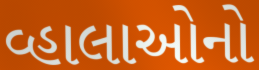
વ્હાલાઓનો